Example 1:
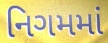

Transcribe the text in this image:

નિગમમાં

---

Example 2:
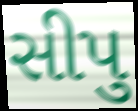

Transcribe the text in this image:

સીપુ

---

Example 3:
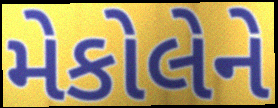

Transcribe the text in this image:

મેકોલેને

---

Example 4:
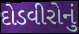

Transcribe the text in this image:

દોડવીરોનું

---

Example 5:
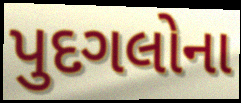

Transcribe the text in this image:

પુદગલોના